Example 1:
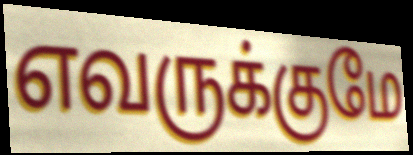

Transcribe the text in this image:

எவருக்குமே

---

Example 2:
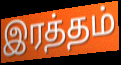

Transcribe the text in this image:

இரத்தம்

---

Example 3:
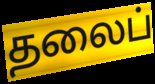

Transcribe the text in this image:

தலைப்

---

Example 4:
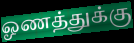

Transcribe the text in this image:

ஓணத்துக்கு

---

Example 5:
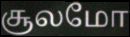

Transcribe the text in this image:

சூலமோ